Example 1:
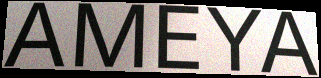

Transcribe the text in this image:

AMEYA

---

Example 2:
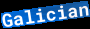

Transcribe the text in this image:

Galician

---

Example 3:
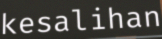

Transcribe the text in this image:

kesalihan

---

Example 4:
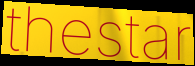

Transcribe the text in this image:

thestar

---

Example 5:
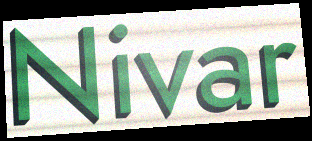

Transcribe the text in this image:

Nivar